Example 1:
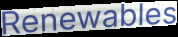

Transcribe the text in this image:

Renewables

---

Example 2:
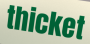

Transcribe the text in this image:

thicket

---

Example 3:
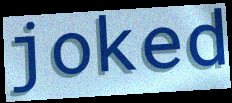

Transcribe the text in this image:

joked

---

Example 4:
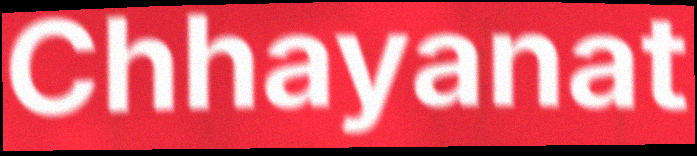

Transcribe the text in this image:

Chhayanat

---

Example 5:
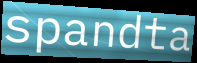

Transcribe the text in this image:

spandta